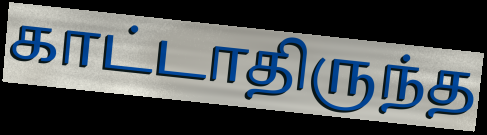
காட்டாதிருந்த